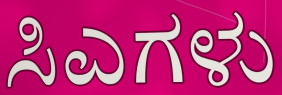
ಸಿಎಗಳು